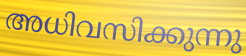
അധിവസിക്കുന്നു